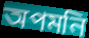
অপমনি